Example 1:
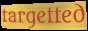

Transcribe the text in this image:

targetted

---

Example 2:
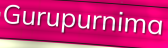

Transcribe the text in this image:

Gurupurnima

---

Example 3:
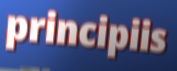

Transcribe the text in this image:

principiis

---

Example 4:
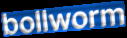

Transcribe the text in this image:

bollworm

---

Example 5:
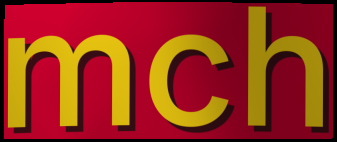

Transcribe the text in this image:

mch